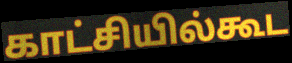
காட்சியில்கூட